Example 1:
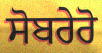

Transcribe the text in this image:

ਸੋਬਰੇਰੋ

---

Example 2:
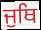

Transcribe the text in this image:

ਜੁਥਿ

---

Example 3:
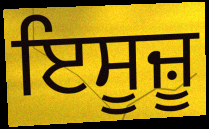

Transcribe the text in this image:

ਇਸੂਜ਼ੂ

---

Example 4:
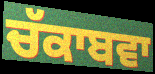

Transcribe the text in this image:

ਚੱਕਾਬਵਾ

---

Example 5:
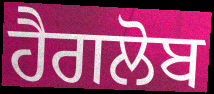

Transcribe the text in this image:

ਹੈਗਲੋਬ